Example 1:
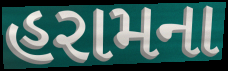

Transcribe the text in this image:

હરામના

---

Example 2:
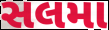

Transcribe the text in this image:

સલમા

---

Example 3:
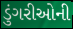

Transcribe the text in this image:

ડુંગરીઓની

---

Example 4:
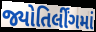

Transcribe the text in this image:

જ્યોતિર્લીંગમાં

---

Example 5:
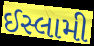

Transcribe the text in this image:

ઈસ્લામી